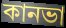
কানভা